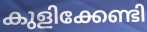
കുളിക്കേണ്ടി